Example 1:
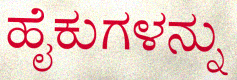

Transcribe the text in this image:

ಹೈಕುಗಳನ್ನು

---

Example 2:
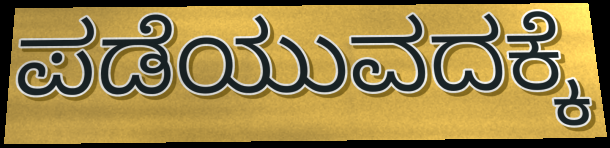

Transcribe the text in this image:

ಪಡೆಯುವದಕ್ಕೆ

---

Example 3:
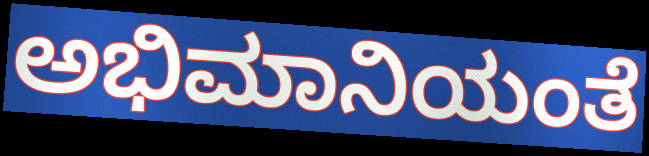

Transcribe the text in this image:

ಅಭಿಮಾನಿಯಂತೆ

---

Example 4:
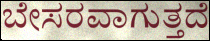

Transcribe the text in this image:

ಬೇಸರವಾಗುತ್ತದೆ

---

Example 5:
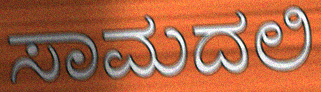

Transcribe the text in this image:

ಸಾಮದಲಿ